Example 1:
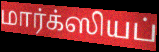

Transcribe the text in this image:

மார்க்ஸியப்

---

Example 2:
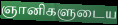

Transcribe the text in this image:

ஞானிகளுடைய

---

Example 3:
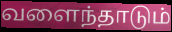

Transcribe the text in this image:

வளைந்தாடும்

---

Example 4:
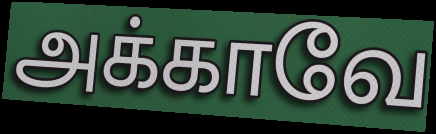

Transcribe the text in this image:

அக்காவே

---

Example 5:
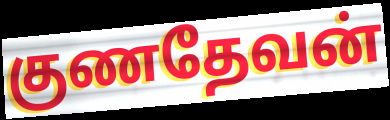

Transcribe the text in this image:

குணதேவன்